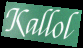
Kallol